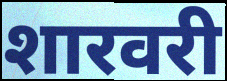
शारवरी